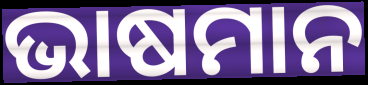
ଭାଷମାନ